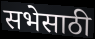
सभेसाठी